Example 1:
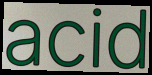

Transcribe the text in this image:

acid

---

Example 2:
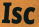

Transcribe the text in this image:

Isc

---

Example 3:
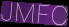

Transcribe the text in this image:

JMFC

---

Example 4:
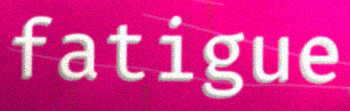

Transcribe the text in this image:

fatigue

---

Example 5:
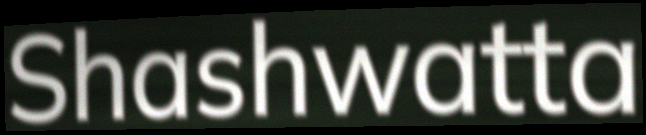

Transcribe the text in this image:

Shashwatta